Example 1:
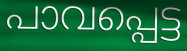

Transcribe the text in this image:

പാവപ്പെട്ട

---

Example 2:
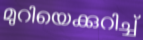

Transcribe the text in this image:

മുറിയെക്കുറിച്ച്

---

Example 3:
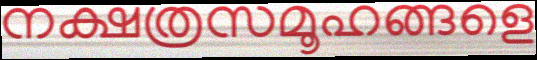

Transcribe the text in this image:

നക്ഷത്രസമൂഹങ്ങളെ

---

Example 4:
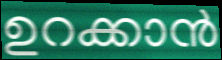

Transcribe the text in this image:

ഉറക്കാൻ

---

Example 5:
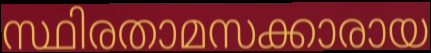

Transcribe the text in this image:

സ്ഥിരതാമസക്കാരായ